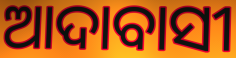
ଆଦାବାସୀ